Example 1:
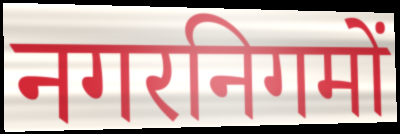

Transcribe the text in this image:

नगरनिगमों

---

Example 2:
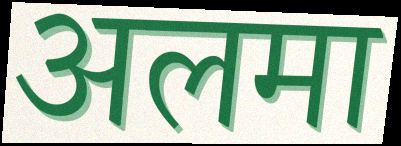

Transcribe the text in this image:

अलमा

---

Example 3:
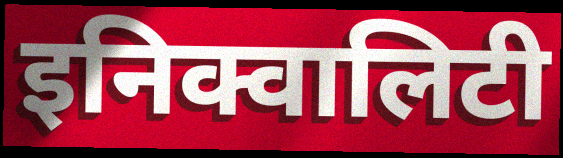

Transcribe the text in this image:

इनिक्वालिटी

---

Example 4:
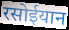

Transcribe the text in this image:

रसोईयान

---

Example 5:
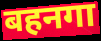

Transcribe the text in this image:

बहनगा